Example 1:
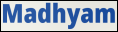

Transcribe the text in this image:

Madhyam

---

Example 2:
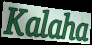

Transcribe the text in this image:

Kalaha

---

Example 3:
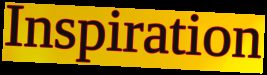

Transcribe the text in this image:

Inspiration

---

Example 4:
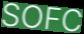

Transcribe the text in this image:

SOFC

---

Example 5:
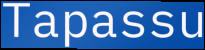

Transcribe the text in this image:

Tapassu